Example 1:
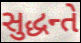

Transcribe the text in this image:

સુદ્ધન્તે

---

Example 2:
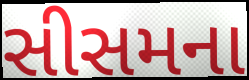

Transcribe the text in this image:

સીસમના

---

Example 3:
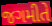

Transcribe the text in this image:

જગમીતે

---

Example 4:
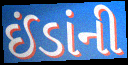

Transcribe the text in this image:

ઈંડાંની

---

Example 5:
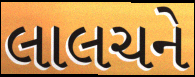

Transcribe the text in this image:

લાલચને